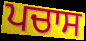
ਪਚਾਸ